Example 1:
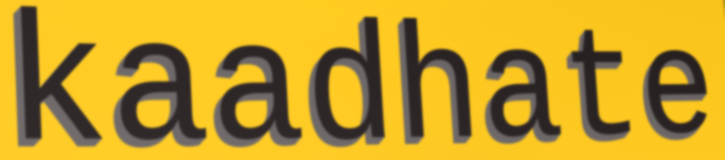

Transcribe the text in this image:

kaadhate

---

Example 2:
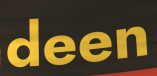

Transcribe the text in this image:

deen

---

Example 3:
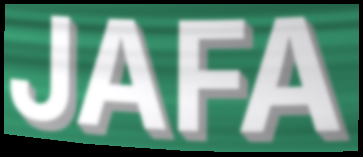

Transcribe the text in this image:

JAFA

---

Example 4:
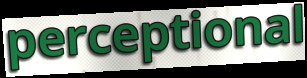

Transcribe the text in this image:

perceptional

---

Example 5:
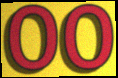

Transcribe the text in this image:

OO